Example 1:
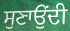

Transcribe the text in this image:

ਸੁਣਾਉਂਦੀ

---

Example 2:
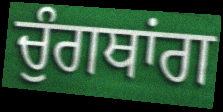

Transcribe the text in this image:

ਚੁੰਗਥਾਂਗ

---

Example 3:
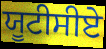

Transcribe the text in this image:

ਯੂਟੀਸੀਏ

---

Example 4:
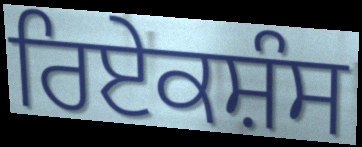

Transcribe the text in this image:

ਰਿਏਕਸ਼ੰਸ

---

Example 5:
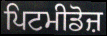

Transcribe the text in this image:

ਪਿਟਮੀਡੋਜ਼